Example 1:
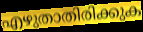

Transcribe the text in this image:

എഴുതാതിരിക്കുക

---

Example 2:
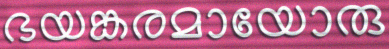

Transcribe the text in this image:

ഭയങ്കരമായോരു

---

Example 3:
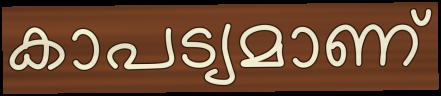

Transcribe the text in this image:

കാപട്യമാണ്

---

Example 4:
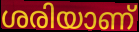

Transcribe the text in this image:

ശരിയാണ്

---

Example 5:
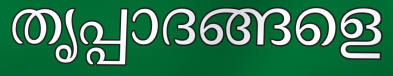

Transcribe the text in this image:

തൃപ്പാദങ്ങളെ